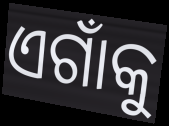
ଏଗାଁକୁ